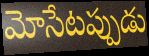
మోసేటప్పుడు